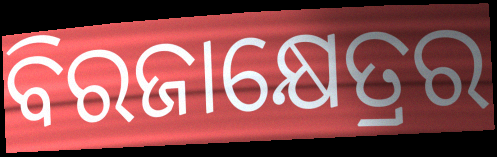
ବିରଜାକ୍ଷେତ୍ରର